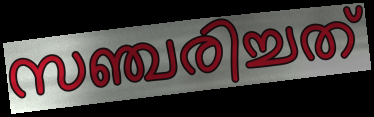
സഞ്ചരിച്ചത്